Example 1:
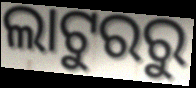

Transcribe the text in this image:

ଲାଟୁରରୁ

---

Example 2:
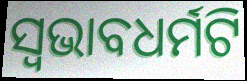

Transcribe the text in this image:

ସ୍ଵଭାବଧର୍ମଟି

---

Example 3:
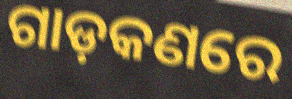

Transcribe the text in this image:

ଗାଡ଼କଣରେ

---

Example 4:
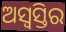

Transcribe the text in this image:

ଅସ୍ୱସ୍ତିର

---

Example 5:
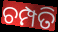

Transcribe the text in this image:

ଚମ୍ପତି